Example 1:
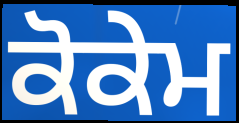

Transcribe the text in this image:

ਕੋਕੇਮ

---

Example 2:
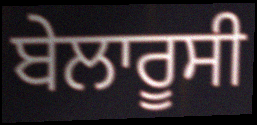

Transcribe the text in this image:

ਬੇਲਾਰੂਸੀ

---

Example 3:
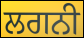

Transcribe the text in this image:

ਲਗਨੀ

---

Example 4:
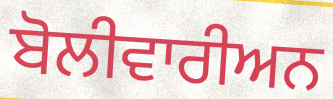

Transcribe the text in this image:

ਬੋਲੀਵਾਰੀਅਨ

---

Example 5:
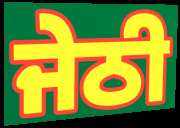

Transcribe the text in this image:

ਜੇਠੀ